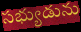
సభ్యుడును